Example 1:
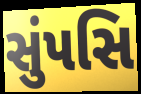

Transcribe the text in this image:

સુંપસિ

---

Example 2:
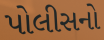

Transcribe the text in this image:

પોલીસનો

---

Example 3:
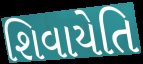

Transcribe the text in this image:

શિવાયેતિ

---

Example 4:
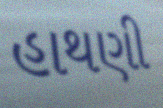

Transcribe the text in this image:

હાથણી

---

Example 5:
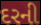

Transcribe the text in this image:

દરની